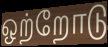
ஒற்றோடு